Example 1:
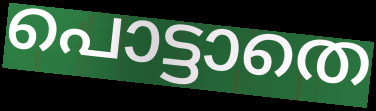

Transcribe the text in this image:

പൊട്ടാതെ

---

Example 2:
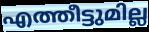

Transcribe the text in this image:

എത്തീട്ടുമില്ല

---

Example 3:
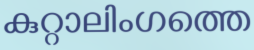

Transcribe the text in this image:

കുറ്റാലിംഗത്തെ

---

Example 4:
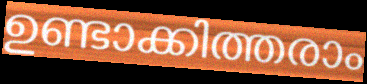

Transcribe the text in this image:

ഉണ്ടാക്കിത്തരാം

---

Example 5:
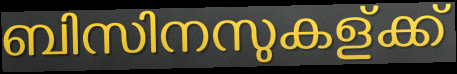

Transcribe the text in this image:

ബിസിനസുകള്ക്ക്